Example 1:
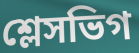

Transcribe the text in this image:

শ্লেসভিগ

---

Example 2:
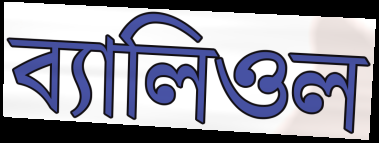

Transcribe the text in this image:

ব্যালিওল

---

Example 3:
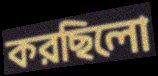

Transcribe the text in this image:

করছিলো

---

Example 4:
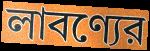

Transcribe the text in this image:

লাবণ্যের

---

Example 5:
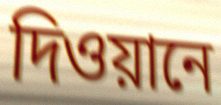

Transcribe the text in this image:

দিওয়ানে